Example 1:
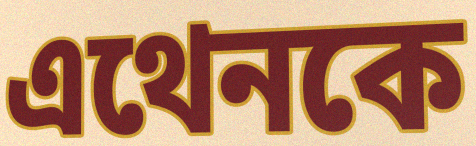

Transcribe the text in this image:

এথেনকে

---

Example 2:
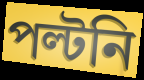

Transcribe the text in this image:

পল্টনি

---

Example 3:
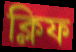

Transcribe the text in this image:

ক্লিফ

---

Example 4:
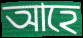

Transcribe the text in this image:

আহে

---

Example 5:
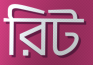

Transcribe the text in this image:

রিট